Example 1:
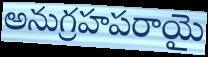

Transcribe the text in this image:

అనుగ్రహపరాయై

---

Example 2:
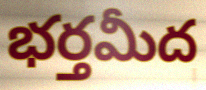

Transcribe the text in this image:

భర్తమీద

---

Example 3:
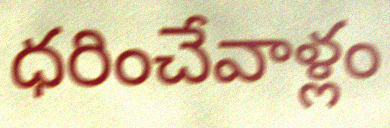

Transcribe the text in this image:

ధరించేవాళ్లం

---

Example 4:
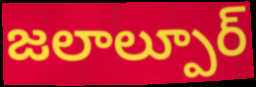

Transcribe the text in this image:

జలాల్పూర్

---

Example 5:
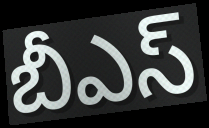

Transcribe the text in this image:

బీఎస్